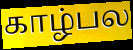
காழ்பல